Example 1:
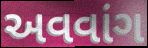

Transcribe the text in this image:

અવવાંગ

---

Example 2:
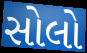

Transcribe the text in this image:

સોલો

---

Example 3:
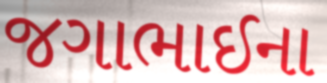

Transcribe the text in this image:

જગાભાઈના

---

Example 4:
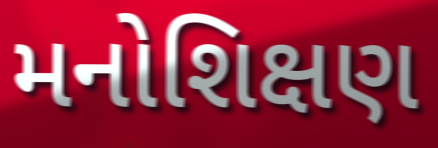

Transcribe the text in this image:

મનોશિક્ષણ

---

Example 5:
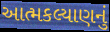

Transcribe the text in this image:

આત્મકલ્યાણનું